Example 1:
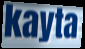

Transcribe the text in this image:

kayta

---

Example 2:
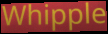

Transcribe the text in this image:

Whipple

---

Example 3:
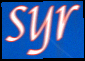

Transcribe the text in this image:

syr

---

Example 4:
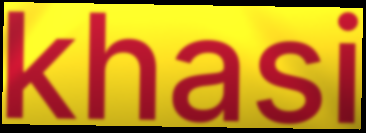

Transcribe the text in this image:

khasi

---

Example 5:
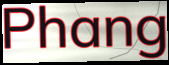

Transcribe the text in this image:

Phang